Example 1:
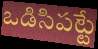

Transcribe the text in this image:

ఒడిసిపట్టే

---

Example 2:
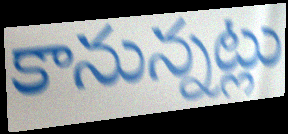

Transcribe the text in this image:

కానున్నట్లు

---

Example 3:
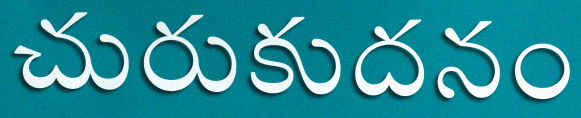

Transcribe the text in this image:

చురుకుదనం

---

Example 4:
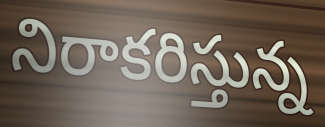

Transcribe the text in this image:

నిరాకరిస్తున్న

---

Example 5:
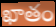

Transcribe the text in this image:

ఖాతం